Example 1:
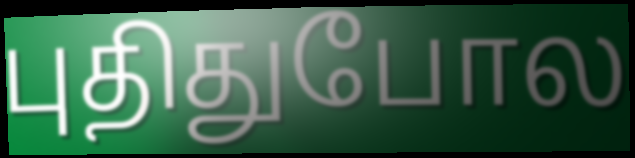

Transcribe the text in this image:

புதிதுபோல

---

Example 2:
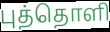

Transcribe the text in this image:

புத்தொளி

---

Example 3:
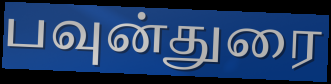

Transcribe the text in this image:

பவுன்துரை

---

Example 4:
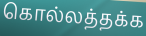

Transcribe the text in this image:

கொல்லத்தக்க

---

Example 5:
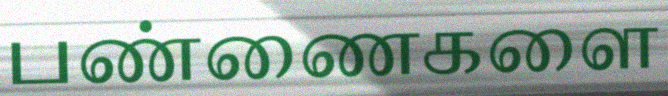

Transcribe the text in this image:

பண்ணைகளை